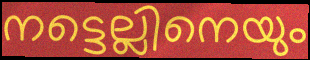
നട്ടെല്ലിനെയും